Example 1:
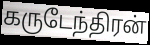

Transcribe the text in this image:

கருடேந்திரன்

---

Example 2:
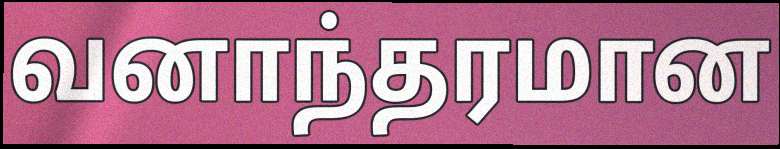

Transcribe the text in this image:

வனாந்தரமான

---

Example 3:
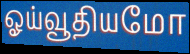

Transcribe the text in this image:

ஓய்வூதியமோ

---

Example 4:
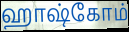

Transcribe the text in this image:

ஹாஷ்கோம்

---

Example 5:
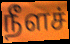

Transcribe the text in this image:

நீளச்